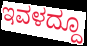
ಇವಳದ್ದೂ